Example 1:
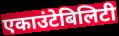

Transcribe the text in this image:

एकाउंटेबिलिटी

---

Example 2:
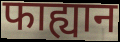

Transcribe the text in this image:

फाह्यान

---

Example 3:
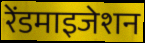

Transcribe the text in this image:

रेंडमाइजेशन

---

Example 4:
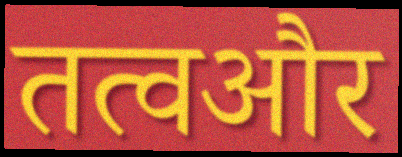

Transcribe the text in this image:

तत्वऔर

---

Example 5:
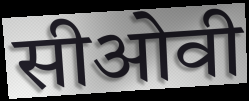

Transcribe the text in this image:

सीओवी